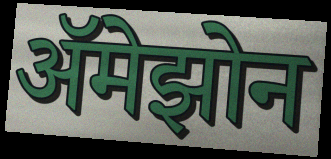
ॲमेझोन